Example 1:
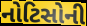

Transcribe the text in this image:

નોટિસોની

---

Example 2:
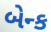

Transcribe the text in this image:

બેન્ક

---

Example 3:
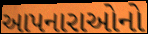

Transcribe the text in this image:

આપનારાઓનો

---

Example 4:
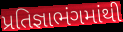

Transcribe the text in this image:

પ્રતિજ્ઞાભંગમાંથી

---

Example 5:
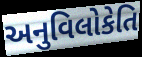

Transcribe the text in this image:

અનુવિલોકેતિ